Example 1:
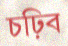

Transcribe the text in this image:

চঢ়িব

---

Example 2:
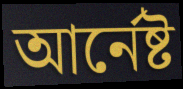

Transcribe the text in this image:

আৰ্নেষ্ট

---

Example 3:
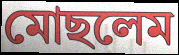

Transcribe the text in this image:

মোছলেম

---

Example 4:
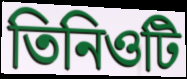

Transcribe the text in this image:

তিনিওটি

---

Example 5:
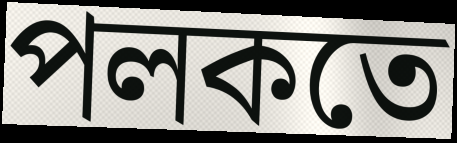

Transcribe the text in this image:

পলকতে